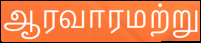
ஆரவாரமற்று